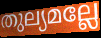
തുല്യമല്ലേ